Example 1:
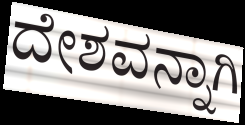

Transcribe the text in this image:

ದೇಶವನ್ನಾಗಿ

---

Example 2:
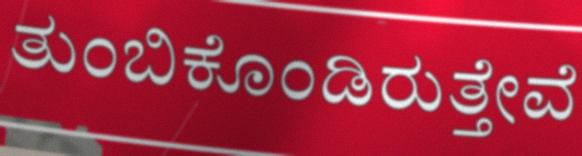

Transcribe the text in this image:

ತುಂಬಿಕೊಂಡಿರುತ್ತೇವೆ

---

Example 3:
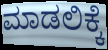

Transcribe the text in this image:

ಮಾಡಲಿಕ್ಕೆ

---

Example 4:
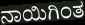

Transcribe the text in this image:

ನಾಯಿಗಿಂತ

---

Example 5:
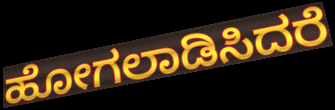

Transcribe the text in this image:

ಹೋಗಲಾಡಿಸಿದರೆ